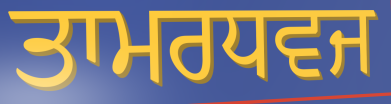
ਤਾਮਰਧਵਜ